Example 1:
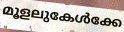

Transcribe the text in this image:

മൂളലുകേൾക്കേ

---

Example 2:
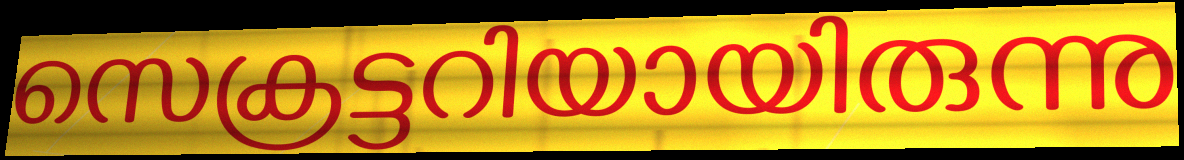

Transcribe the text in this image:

സെക്രട്ടറിയായിരുന്നു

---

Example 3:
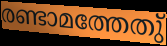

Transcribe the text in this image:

രണ്ടാമത്തേതു്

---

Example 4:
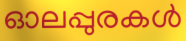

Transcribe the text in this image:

ഓലപ്പുരകൾ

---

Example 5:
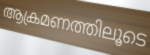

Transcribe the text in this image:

ആക്രമണത്തിലൂടെ